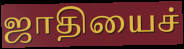
ஜாதியைச்